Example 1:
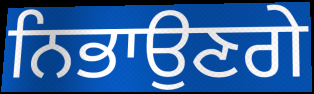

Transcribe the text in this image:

ਨਿਭਾਉਣਗੇ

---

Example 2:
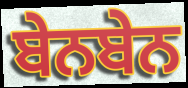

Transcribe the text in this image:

ਬੇਨਬੇਨ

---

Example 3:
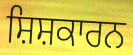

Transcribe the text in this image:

ਸ਼ਿਸ਼ਕਾਰਨ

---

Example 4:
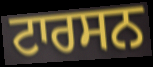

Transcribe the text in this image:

ਟਾਰਸਨ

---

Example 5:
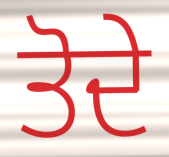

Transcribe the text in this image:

ਤੋਦੇ